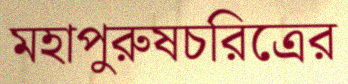
মহাপুরুষচরিত্রের